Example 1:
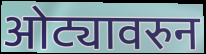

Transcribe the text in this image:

ओट्यावरुन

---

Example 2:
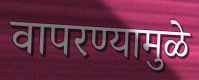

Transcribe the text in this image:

वापरण्यामुळे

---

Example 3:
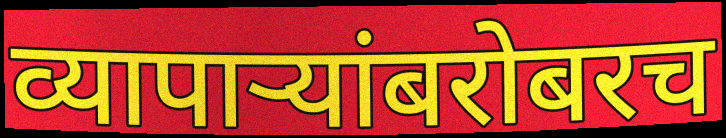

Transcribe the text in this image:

व्यापाऱ्यांबरोबरच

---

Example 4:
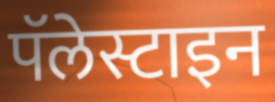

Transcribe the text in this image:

पॅलेस्टाइन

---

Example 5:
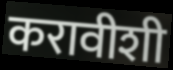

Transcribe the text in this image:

करावीशी